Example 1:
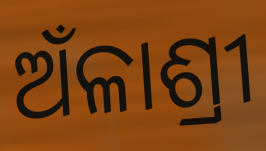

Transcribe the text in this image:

ଅଁଳାଶ୍ରୀ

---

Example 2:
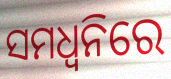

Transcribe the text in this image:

ସମଧ୍ୱନିରେ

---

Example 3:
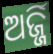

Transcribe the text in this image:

ଅର୍ଜ୍ଜି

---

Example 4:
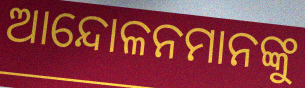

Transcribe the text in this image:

ଆନ୍ଦୋଳନମାନଙ୍କୁ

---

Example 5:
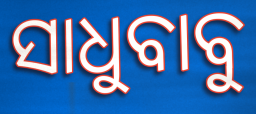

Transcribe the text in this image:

ସାଧୁବାବୁ